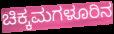
ಚಿಕ್ಕಮಗಳೂರಿನ